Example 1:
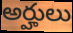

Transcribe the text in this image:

అర్హులు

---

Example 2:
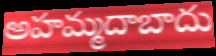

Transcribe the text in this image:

అహమ్మదాబాదు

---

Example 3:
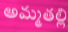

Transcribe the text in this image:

అమ్మతల్లి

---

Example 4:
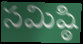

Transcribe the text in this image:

సమిష్ఠి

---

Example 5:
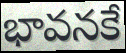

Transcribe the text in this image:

భావనకే